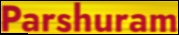
Parshuram